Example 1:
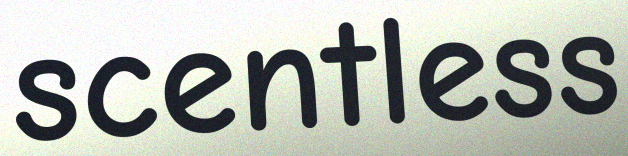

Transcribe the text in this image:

scentless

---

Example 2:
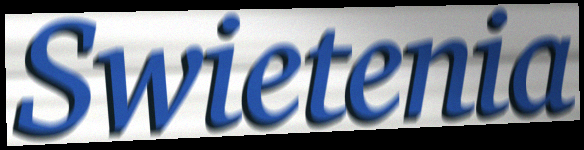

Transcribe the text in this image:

Swietenia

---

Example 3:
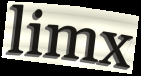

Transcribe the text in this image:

limx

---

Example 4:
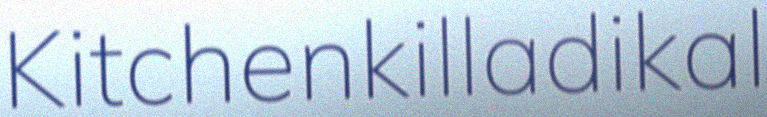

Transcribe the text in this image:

Kitchenkilladikal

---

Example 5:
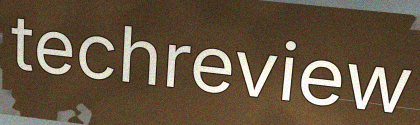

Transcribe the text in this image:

techreview